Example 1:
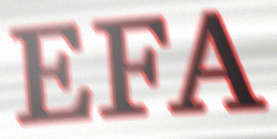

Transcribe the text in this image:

EFA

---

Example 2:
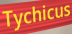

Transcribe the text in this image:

Tychicus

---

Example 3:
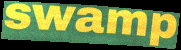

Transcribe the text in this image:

swamp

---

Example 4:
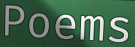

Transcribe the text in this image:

Poems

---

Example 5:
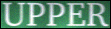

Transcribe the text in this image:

UPPER